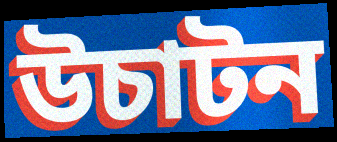
উচাটন